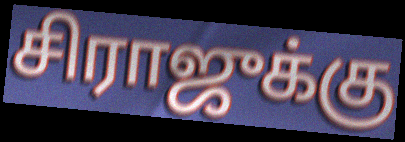
சிராஜுக்கு